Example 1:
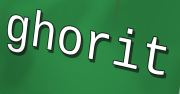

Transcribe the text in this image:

ghorit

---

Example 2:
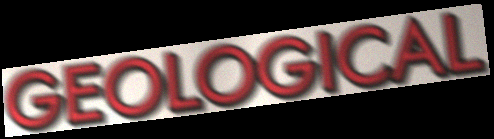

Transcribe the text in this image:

GEOLOGICAL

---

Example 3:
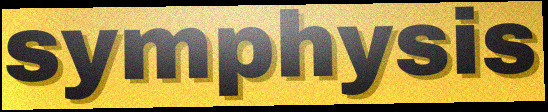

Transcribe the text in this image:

symphysis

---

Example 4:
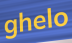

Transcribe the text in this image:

ghelo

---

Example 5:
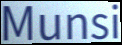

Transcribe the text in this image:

Munsi